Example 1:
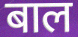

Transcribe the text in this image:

बाल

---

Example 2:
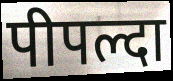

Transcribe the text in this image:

पीपल्दा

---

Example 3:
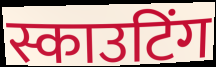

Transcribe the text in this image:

स्काउटिंग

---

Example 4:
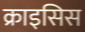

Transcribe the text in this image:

क्राइसिस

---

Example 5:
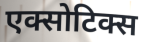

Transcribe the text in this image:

एक्सोटिक्स